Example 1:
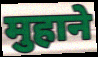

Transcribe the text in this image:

मुहाने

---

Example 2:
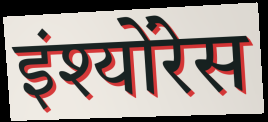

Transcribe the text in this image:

इंश्योंरेस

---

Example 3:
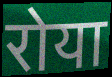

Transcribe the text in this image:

रोया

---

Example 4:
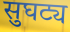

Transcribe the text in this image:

सुघट्य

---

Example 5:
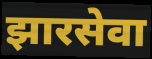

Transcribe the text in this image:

झारसेवा